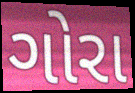
ગોરા